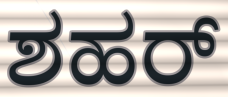
ಶಹರ್